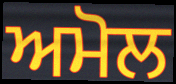
ਅਮੋਲ